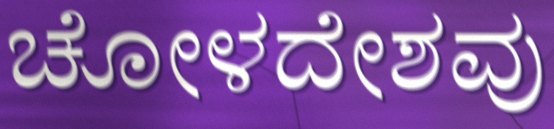
ಚೋಳದೇಶವು